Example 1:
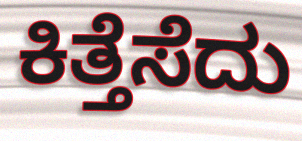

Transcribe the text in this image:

ಕಿತ್ತೆಸೆದು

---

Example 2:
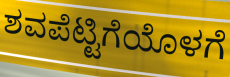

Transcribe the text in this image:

ಶವಪೆಟ್ಟಿಗೆಯೊಳಗೆ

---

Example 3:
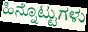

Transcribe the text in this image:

ಹಿನ್ನೊಟ್ಟುಗಳು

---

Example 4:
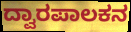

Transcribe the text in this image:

ದ್ವಾರಪಾಲಕನ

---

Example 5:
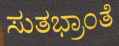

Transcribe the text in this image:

ಸುತಭ್ರಾಂತೆ